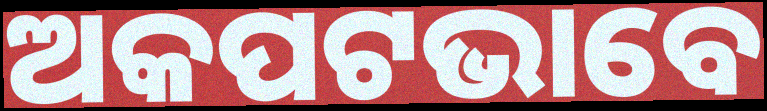
ଅକପଟଭାବେ